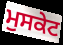
ਮੁਸਕੇਟ